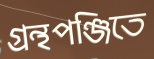
গ্রন্থপঞ্জিতে